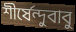
শীর্ষেন্দুবাবু